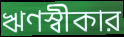
ঋণস্বীকার